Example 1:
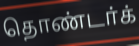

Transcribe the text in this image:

தொண்டர்க்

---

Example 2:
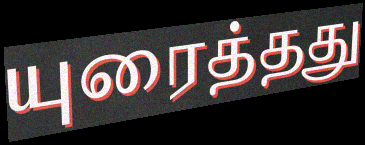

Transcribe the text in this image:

யுரைத்தது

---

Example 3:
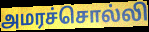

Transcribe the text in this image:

அமரச்சொல்லி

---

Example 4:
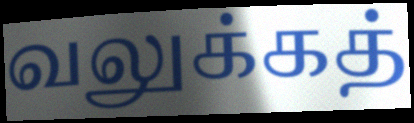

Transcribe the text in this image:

வலுக்கத்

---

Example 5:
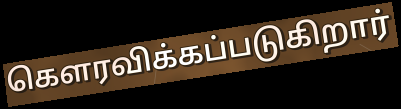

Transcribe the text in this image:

கௌரவிக்கப்படுகிறார்